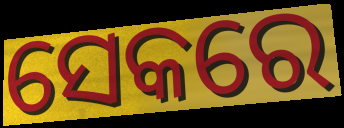
ସେକରେ